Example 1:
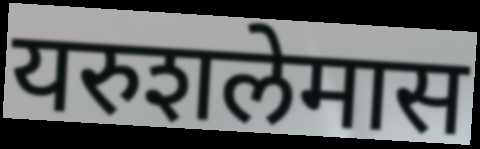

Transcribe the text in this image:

यरुशलेमास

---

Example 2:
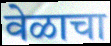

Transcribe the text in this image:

वेळाचा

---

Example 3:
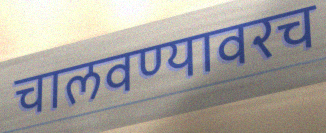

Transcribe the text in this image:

चालवण्यावरच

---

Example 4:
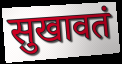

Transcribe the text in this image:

सुखावतं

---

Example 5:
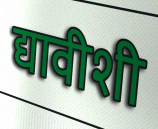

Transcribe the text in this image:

द्यावीशी